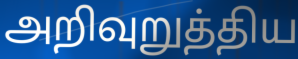
அறிவுறுத்திய